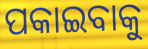
ପକାଇବାକୁ